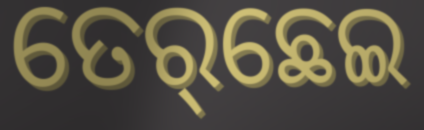
ତେର୍‌ଛେଇ